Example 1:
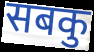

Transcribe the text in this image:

सबकु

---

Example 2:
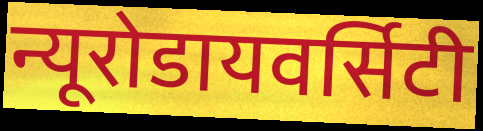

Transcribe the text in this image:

न्यूरोडायवर्सिटी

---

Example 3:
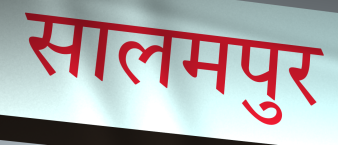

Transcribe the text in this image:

सालमपुर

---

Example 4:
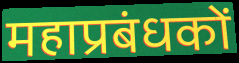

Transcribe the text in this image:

महाप्रबंधकों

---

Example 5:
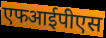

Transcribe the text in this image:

एफआईपीएस